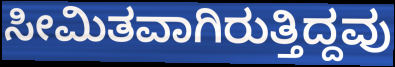
ಸೀಮಿತವಾಗಿರುತ್ತಿದ್ದವು